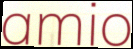
amio